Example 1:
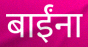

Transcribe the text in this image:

बाईंना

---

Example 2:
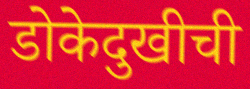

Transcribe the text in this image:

डोकेदुखीची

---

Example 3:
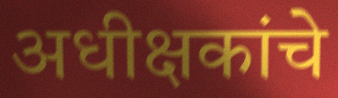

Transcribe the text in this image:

अधीक्षकांचे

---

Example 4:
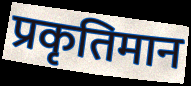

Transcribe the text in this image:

प्रकृतिमान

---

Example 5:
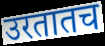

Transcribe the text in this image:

उरतातच